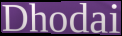
Dhodai